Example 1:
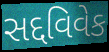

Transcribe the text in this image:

સદ્દવિવેક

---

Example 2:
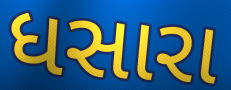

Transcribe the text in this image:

ધસારા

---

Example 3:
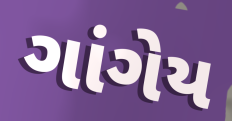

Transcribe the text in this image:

ગાંગેય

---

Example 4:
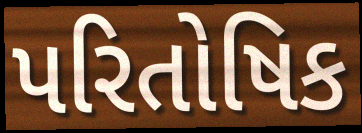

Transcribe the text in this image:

પરિતોષિક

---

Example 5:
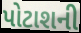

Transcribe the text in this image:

પોટાશની